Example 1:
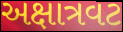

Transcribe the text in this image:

અક્ષાત્રવટ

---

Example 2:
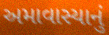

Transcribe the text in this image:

અમાવાસ્યાનું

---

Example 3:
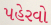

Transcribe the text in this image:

પહેરવો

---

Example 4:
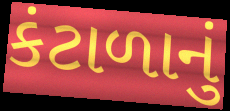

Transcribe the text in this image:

કંટાળાનું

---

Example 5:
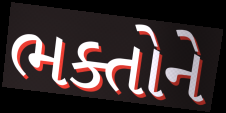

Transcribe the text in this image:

ભક્તોને